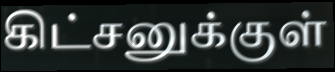
கிட்சனுக்குள்